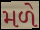
મળે